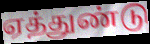
ஏத்துண்டு